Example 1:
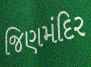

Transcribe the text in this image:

જિણમંદિર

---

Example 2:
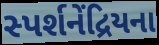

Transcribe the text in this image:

સ્પર્શનેંદ્રિયના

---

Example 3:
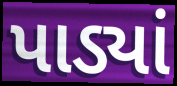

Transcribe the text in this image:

પાડ્યાં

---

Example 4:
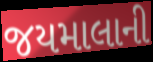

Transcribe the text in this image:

જયમાલાની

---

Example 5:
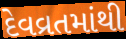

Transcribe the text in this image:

દેવવ્રતમાંથી